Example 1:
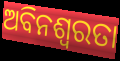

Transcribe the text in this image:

ଅବିନଶ୍ୱରତା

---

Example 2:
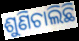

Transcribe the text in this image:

ଶୁଣିଚାଲିଛି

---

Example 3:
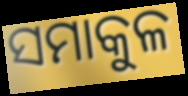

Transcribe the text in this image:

ସମାକୁଳ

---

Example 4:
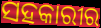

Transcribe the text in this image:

ସହକାରୀର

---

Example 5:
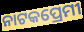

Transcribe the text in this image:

ନାଟକପ୍ରେମୀ